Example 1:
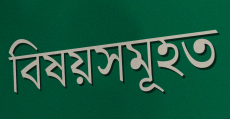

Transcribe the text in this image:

বিষয়সমূহত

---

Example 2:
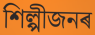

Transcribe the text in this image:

শিল্পীজনৰ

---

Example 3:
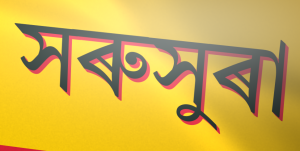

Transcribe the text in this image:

সৰুসুৰা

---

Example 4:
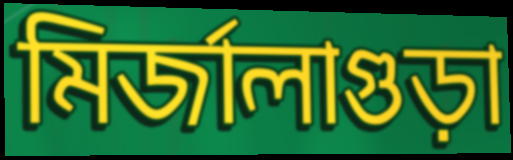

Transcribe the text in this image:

মিৰ্জালাগুড়া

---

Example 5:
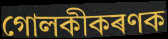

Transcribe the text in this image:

গোলকীকৰণক